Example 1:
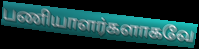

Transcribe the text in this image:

பணியாளர்களாகவே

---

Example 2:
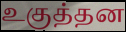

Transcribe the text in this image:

உகுத்தன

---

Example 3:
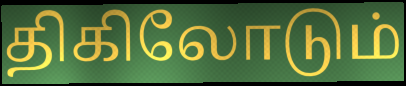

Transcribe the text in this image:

திகிலோடும்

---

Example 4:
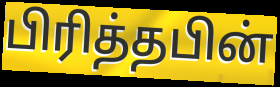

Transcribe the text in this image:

பிரித்தபின்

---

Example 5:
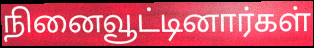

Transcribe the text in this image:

நினைவூட்டினார்கள்